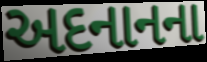
અદનાનના